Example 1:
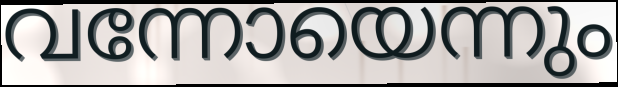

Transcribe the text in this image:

വന്നോയെന്നും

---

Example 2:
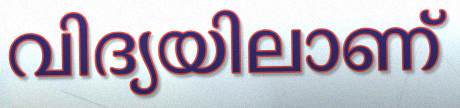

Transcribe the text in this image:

വിദ്യയിലാണ്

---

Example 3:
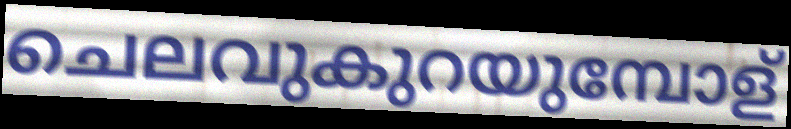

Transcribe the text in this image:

ചെലവുകുറയുമ്പോള്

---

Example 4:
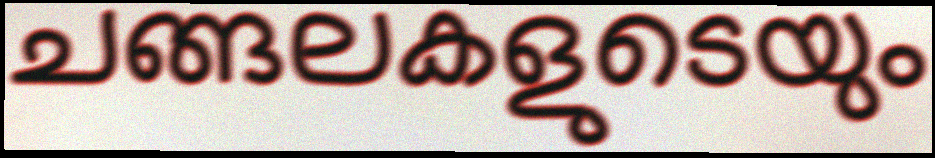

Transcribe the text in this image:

ചങ്ങലകളുടെയും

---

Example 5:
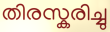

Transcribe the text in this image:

തിരസ്കരിച്ചു